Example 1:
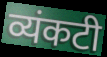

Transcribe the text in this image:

व्यंकटी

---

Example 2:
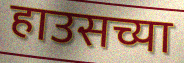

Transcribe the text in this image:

हाउसच्या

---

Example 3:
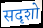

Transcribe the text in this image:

सदृशो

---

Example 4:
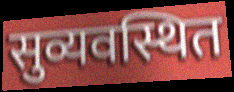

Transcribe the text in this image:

सुव्यवस्थित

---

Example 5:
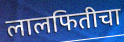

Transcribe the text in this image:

लालफितीचा